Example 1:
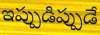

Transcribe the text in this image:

ఇప్పుడిప్పుడే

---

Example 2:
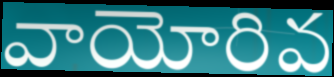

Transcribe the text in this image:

వాయోరివ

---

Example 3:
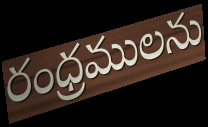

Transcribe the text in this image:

రంధ్రములను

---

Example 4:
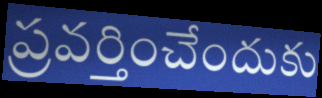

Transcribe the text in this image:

ప్రవర్తించేందుకు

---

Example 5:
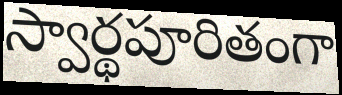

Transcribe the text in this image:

స్వార్థపూరితంగా